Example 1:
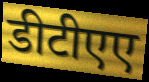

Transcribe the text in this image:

डीटीएए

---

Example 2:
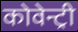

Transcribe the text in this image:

कोवेन्ट्री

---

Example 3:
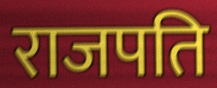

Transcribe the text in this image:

राजपति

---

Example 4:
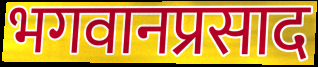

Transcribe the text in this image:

भगवानप्रसाद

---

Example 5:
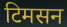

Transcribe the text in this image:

टिमसन